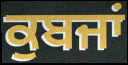
ਕੁਬਜਾਂ